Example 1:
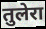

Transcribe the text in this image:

तुलेरा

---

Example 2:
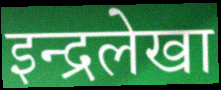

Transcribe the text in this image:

इन्द्रलेखा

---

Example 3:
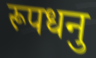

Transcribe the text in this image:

रूपधनु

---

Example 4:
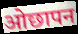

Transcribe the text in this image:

ओछापन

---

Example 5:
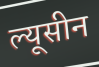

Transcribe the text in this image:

ल्यूसीन